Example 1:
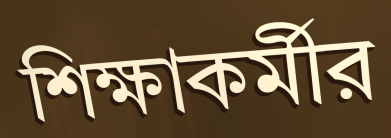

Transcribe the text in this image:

শিক্ষাকর্মীর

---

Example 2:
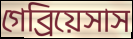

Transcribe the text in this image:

গেব্রিয়েসাস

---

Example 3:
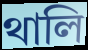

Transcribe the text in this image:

থালি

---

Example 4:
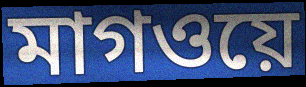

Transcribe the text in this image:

মাগওয়ে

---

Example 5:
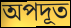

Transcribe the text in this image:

অপদূত